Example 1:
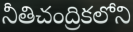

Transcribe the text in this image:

నీతిచంద్రికలోని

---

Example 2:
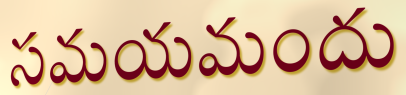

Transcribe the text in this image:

సమయమందు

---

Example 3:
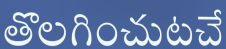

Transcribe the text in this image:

తొలగించుటచే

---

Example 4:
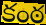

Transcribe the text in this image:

కంఠ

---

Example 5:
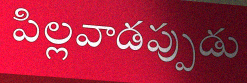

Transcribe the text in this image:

పిల్లవాడప్పుడు